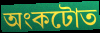
অংকটোত